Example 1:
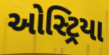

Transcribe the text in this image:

ઓસ્ટ્રિયા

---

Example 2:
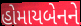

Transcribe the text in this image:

હોમાયબેનને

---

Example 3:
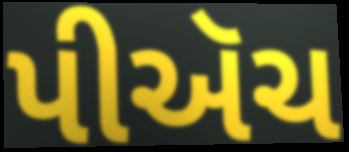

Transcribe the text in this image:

પીઍચ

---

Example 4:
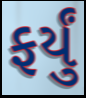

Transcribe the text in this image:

ફર્યું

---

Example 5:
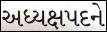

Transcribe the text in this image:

અધ્યક્ષપદને